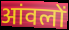
आंवलों